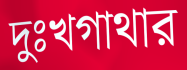
দুঃখগাথার